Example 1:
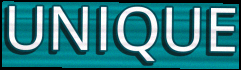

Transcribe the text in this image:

UNIQUE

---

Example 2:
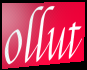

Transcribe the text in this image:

ollut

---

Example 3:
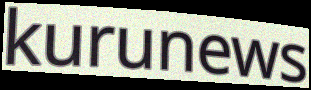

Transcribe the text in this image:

kurunews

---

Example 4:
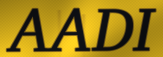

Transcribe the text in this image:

AADI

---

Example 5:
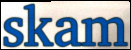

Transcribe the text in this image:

skam